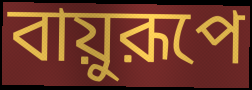
বায়ুরূপে